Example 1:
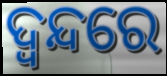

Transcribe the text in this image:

ଦ୍ଵନ୍ଦରେ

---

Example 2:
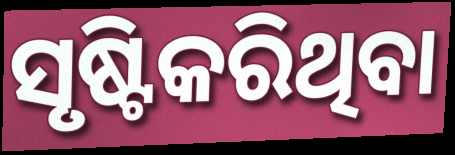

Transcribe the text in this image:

ସୃଷ୍ଟିକରିଥିବା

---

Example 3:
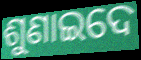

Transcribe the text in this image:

ଶୁଣାଇଦେ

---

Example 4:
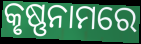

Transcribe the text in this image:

କୃଷ୍ଣନାମରେ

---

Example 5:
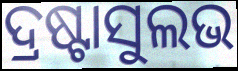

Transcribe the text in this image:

ଦ୍ରଷ୍ଟାସୁଲଭ